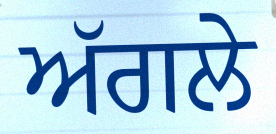
ਅੱਗਲੇ